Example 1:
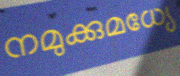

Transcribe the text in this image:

നമുക്കുമധ്യേ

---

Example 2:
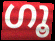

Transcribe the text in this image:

ഗൂ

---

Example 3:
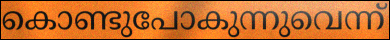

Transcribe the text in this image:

കൊണ്ടുപോകുന്നുവെന്ന്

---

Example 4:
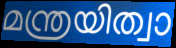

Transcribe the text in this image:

മന്ത്രയിത്വാ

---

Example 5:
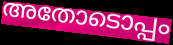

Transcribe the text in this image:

അതോടൊപ്പം